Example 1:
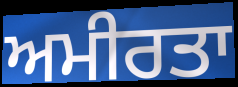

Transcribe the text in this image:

ਅਮੀਰਤਾ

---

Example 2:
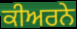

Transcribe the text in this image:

ਕੀਅਰਨੇ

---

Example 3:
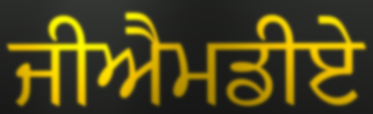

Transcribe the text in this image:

ਜੀਐਮਡੀਏ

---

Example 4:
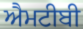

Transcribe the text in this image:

ਐਮਟੀਬੀ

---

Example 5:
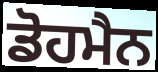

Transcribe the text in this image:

ਡੋਹਮੈਨ